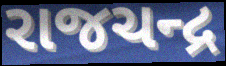
રાજચન્દ્ર